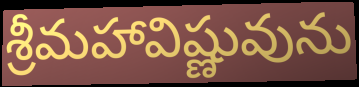
శ్రీమహావిష్ణువును